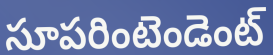
సూపరింటెండెంట్